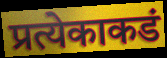
प्रत्येकाकडं